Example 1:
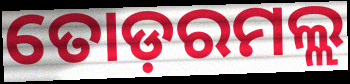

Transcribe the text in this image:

ତୋଡ଼ରମଲ୍ଲ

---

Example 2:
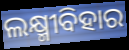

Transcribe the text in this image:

ଲକ୍ଷ୍ମୀବିହାର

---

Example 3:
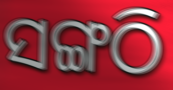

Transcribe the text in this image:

ସଙ୍ଗଠି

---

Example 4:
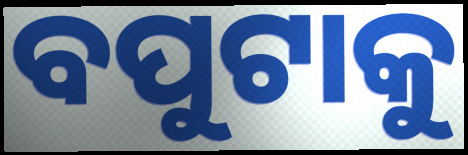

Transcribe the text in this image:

ବପୁଟାକୁ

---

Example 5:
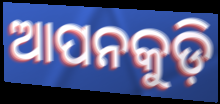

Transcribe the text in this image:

ଆପନକୁଡ଼ି